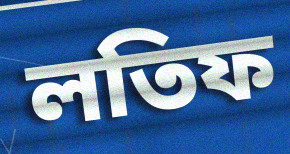
লতিফ